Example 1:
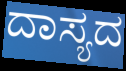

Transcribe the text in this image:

ದಾಸ್ಯದ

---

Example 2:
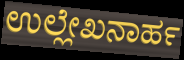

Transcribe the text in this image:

ಉಲ್ಲೇಖನಾರ್ಹ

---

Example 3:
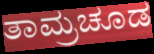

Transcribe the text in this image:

ತಾಮ್ರಚೂಡ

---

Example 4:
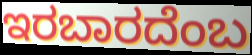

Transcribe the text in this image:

ಇರಬಾರದೆಂಬ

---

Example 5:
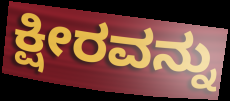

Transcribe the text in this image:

ಕ್ಷೀರವನ್ನು